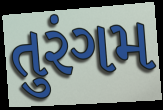
તુરંગમ